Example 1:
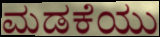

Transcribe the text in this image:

ಮಡಕೆಯು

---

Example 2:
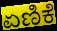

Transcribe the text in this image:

ಏಣಿಕೆ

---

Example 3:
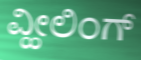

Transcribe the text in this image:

ವ್ಹೀಲಿಂಗ್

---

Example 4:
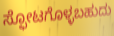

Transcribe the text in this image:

ಸ್ಫೋಟಗೊಳ್ಳಬಹುದು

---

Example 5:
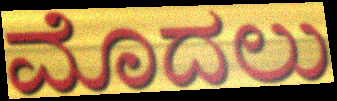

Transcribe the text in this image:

ಮೊದಲು